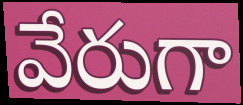
వేరుగా